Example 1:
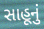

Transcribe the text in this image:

સાહૂનું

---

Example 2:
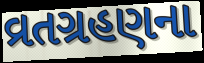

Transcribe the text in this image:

વ્રતગ્રહણના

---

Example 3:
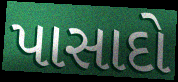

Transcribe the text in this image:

પાસાદો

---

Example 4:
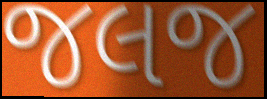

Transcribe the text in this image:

જલજ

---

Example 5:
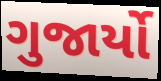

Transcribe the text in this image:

ગુજાર્યો